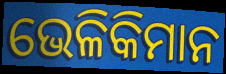
ଭେଳିକିମାନ